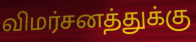
விமர்சனத்துக்கு